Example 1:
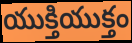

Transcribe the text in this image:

యుక్తియుక్తం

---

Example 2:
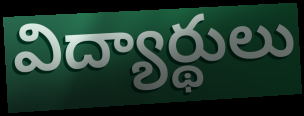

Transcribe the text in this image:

విద్యార్థులు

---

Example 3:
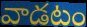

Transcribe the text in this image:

వాడటం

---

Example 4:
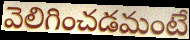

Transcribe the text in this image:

వెలిగించడమంటే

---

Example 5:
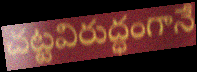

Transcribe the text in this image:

చట్టవిరుద్ధంగానే